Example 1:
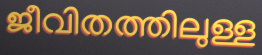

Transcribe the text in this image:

ജീവിതത്തിലുള്ള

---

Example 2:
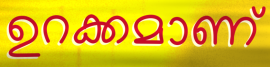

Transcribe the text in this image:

ഉറക്കമാണ്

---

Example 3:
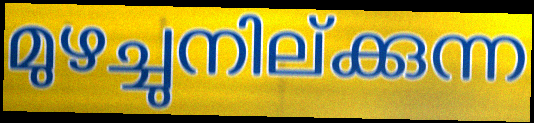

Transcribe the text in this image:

മുഴച്ചുനില്ക്കുന്ന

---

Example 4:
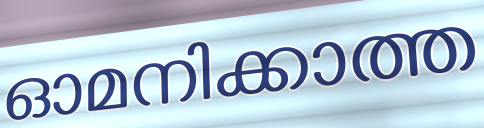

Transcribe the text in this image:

ഓമനിക്കാത്ത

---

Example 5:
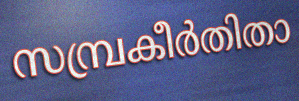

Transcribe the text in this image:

സമ്പ്രകീർതിതാ